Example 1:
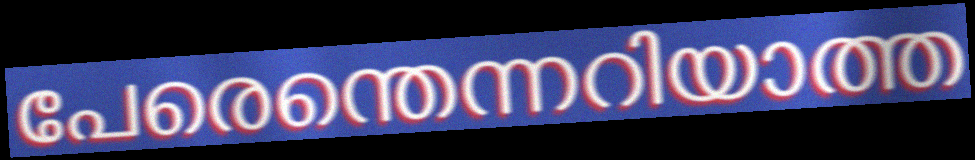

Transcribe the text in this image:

പേരെന്തെന്നറിയാത്ത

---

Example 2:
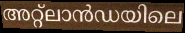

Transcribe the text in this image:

അറ്റ്ലാൻഡയിലെ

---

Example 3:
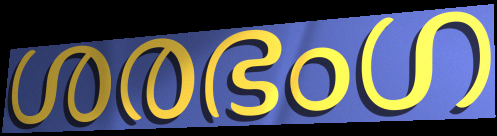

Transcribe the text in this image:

ശരഭംഗ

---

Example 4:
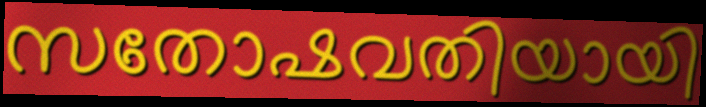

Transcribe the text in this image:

സതോഷവതിയായി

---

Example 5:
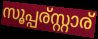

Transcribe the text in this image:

സൂപ്പര്സ്റ്റാര്